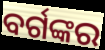
ବର୍ଗଙ୍କର